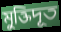
মুক্তিদূত